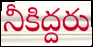
నీకిద్దరు